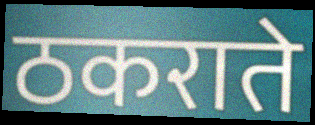
ठकराते